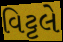
વિટ્ટલે